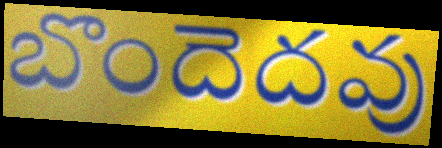
బొందెదవు